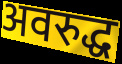
अवरुद्ध